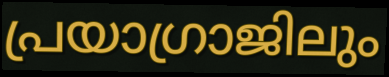
പ്രയാഗ്രാജിലും